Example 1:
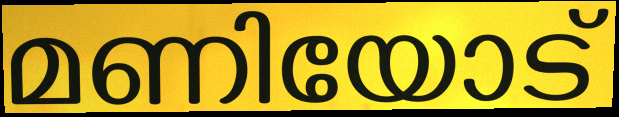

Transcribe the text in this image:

മണിയോട്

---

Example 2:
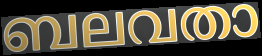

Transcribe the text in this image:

ബലവതാ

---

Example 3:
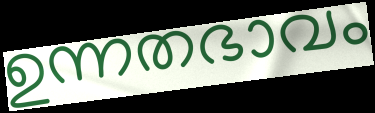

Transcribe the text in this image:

ഉന്നതഭാവം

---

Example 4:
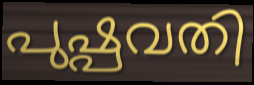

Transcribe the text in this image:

പുഷ്പവതി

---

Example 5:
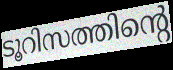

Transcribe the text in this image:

ടൂറിസത്തിന്റെ